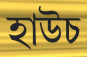
হাউচ